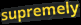
supremely